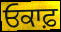
ਓਕਾਫ਼